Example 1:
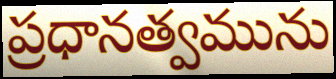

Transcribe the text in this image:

ప్రధానత్వమును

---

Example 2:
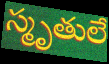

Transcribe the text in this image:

స్మృతులే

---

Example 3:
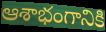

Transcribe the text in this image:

ఆశాభంగానికి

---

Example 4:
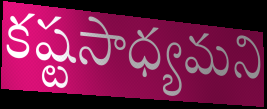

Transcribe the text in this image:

కష్టసాధ్యమని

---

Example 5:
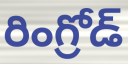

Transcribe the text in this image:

రింగ్రోడ్